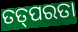
ତତ୍‌ପରତା